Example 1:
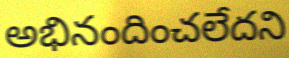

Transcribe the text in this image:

అభినందించలేదని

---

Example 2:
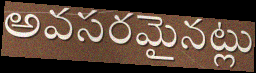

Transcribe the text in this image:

అవసరమైనట్లు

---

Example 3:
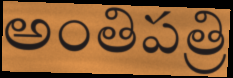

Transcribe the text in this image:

అంతిపత్రి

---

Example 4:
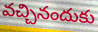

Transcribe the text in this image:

వచ్చినందుకు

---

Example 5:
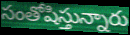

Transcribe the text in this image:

సంతోషిస్తున్నారు